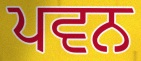
ਪਵਨ